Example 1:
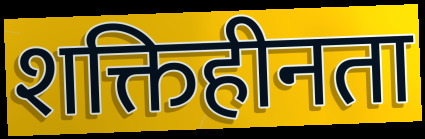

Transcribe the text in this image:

शक्तिहीनता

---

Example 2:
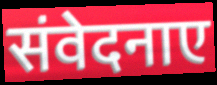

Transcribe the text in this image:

संवेदनाए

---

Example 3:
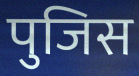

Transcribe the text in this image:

पुजिस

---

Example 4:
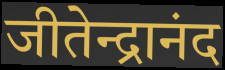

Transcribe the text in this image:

जीतेन्द्रानंद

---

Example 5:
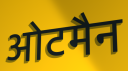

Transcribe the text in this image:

ओटमैन